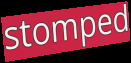
stomped